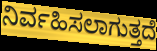
ನಿರ್ವಹಿಸಲಾಗುತ್ತದೆ